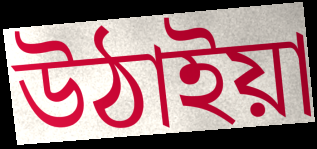
উঠাইয়া